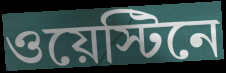
ওয়েস্টিনে